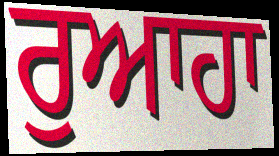
ਰੁਆਹਾ